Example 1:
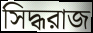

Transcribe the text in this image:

সিদ্ধরাজ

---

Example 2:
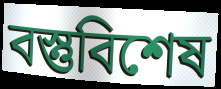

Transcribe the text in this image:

বস্তুবিশেষ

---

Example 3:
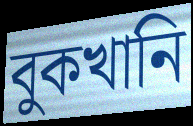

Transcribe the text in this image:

বুকখানি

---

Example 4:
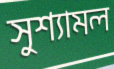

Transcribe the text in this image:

সুশ্যামল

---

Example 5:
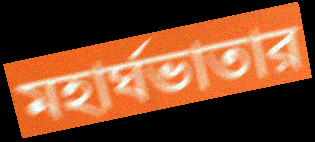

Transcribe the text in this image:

মহার্ঘভাতার